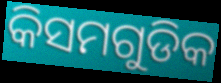
କିସମଗୁଡିକ